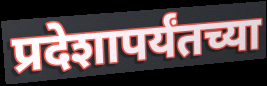
प्रदेशापर्यंतच्या